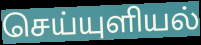
செய்யுளியல்